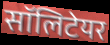
सॉलिटेयर